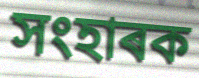
সংহাৰক